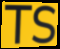
TS